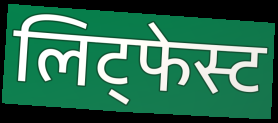
लिट्फेस्ट